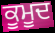
ਕੂਮੂਦ